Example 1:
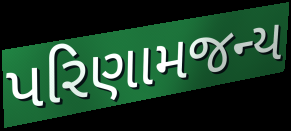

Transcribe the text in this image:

પરિણામજન્ય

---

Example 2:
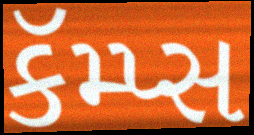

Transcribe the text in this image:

કૅમ્પ્સ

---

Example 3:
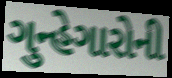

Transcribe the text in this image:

ગુન્હેગારોની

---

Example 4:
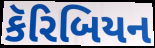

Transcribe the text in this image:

કૅરિબિયન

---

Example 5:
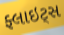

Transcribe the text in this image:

ફ્લાઇટ્સ